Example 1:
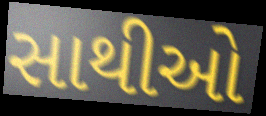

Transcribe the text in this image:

સાથીઓ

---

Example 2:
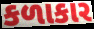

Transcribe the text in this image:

કળાકાર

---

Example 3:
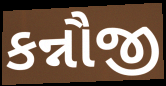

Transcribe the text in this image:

કન્નૌજી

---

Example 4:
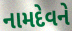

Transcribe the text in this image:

નામદેવને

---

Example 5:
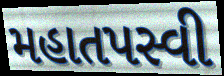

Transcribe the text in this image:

મહાતપસ્વી